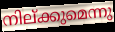
നില്ക്കുമെന്നു